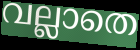
വല്ലാതെ